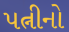
પત્નીનો